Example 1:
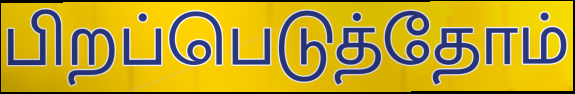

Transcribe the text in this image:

பிறப்பெடுத்தோம்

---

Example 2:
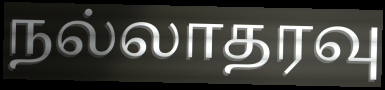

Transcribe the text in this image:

நல்லாதரவு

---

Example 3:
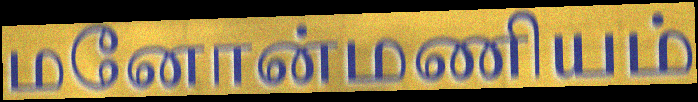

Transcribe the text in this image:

மனோன்மணியம்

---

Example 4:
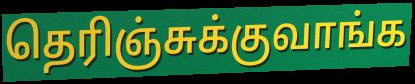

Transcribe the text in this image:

தெரிஞ்சுக்குவாங்க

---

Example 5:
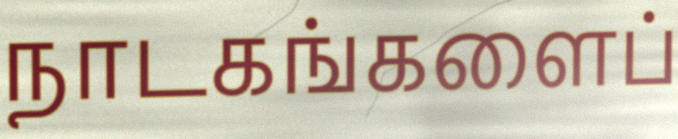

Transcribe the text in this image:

நாடகங்களைப்